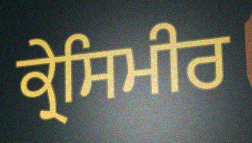
ਕ੍ਰੇਸਿਮੀਰ